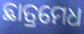
ଛାତ୍ରମେଧ